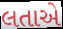
લતાએ